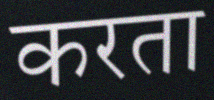
करता